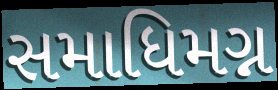
સમાધિમગ્ન